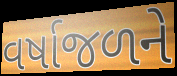
વર્ષાજળને